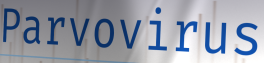
Parvovirus